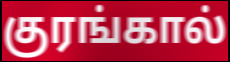
குரங்கால்